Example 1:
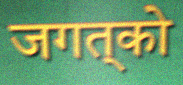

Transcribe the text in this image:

जगत्‌को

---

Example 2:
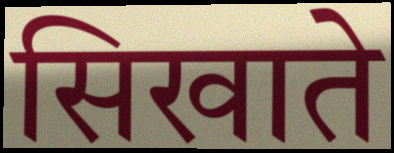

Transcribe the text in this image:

सिखाते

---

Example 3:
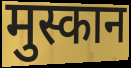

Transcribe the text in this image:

मुस्कान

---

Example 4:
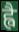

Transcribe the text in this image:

ह्वै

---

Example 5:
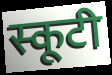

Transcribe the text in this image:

स्कूटी